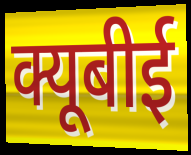
क्यूबीई